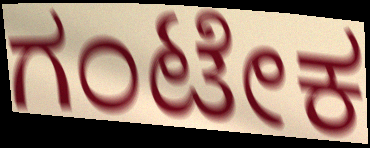
ಗಂಟೇಕ